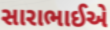
સારાભાઈએ